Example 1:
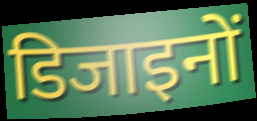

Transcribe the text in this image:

डिजाइनों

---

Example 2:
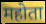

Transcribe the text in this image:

महोता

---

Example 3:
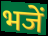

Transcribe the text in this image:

भजें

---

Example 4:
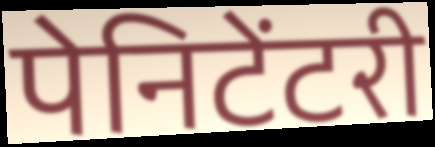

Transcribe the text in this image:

पेनिटेंटरी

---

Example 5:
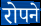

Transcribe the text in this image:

रोपने